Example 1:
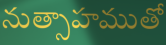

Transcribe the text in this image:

నుత్సాహముతో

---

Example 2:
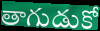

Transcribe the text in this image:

తాగుడుకో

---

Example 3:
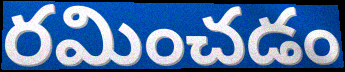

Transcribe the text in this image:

రమించడం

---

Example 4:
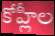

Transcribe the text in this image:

కోహ్లీల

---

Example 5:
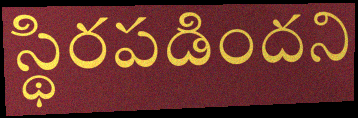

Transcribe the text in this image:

స్థిరపడిందని